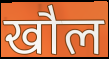
खौल